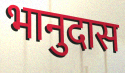
भानुदास